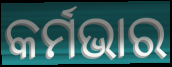
କର୍ମଭାର